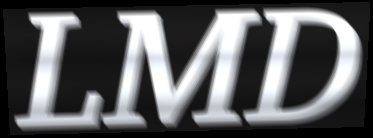
LMD